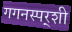
गगनस्पर्शी